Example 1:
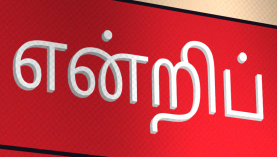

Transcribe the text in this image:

என்றிப்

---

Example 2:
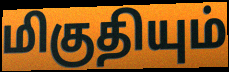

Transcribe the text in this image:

மிகுதியும்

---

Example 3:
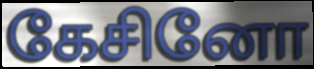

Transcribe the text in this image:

கேசினோ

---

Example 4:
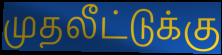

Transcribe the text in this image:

முதலீட்டுக்கு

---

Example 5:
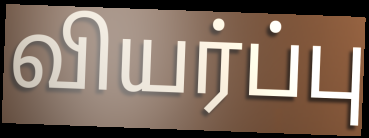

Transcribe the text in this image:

வியர்ப்பு